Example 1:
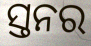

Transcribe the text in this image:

ସ୍ତନର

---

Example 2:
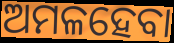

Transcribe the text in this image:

ଅମଳହେବା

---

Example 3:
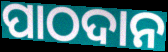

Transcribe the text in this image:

ପାଠଦାନ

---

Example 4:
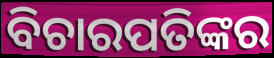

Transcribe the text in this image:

ବିଚାରପତିଙ୍କର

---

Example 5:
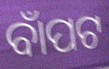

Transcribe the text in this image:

ବାଁପଟ